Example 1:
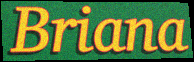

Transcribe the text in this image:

Briana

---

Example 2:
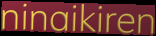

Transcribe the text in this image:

ninaikiren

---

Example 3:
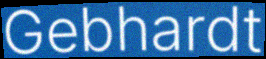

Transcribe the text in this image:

Gebhardt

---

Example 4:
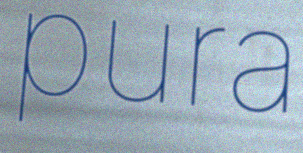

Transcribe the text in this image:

pura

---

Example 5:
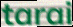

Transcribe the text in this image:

tarai